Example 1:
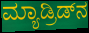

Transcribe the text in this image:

ಮ್ಯಾಡ್ರಿಡ್‌ನ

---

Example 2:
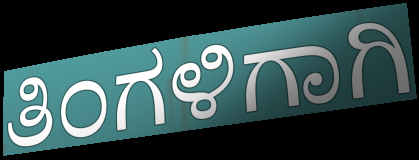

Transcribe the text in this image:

ತಿಂಗಳಿಗಾಗಿ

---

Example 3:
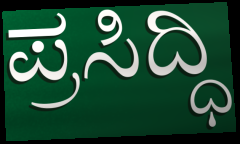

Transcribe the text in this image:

ಪ್ರಸಿದ್ಧಿ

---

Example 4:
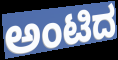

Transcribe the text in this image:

ಅಂಟಿದ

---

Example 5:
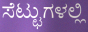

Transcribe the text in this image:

ಸೆಟ್ಟುಗಳಲ್ಲಿ